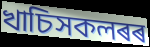
খাচিসকলৰৰ